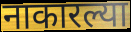
नाकारल्या